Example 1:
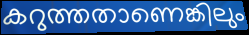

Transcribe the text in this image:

കറുത്തതാണെങ്കിലും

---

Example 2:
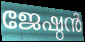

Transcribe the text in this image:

ജേഷ്ഠൻ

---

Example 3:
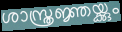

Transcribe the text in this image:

ശാസ്ത്രജ്ഞയ്ക്കും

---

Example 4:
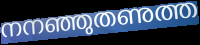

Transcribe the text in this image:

നനഞ്ഞുതണുത്ത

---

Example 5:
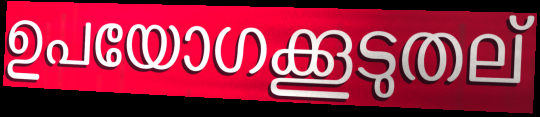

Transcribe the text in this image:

ഉപയോഗക്കൂടുതല്